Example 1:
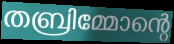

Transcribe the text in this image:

തബ്രിമ്മോന്റെ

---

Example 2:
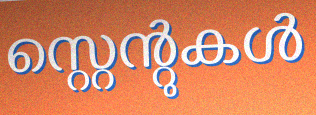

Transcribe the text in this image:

സ്റ്റെന്റുകൾ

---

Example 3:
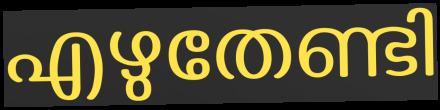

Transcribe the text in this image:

എഴുതേണ്ടി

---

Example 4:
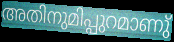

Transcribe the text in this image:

അതിനുമിപ്പുറമാണു്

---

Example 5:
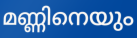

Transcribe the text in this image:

മണ്ണിനെയും